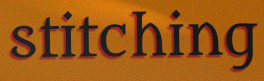
stitching